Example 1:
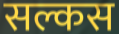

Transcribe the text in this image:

सल्कस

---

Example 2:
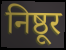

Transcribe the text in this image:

निष्ठूर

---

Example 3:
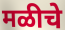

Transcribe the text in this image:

मळीचे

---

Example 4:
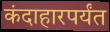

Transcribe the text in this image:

कंदाहारपर्यंत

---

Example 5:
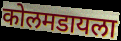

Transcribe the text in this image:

कोलमडायला